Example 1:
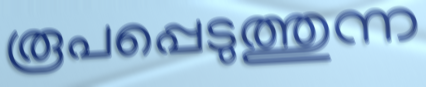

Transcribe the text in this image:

രൂപപ്പെടുത്തുന്ന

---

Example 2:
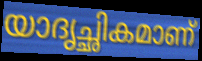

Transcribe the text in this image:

യാദൃച്ഛികമാണ്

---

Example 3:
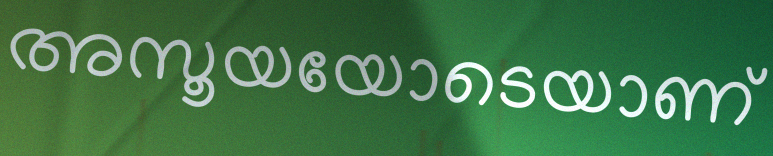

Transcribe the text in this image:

അസൂയയോടെയാണ്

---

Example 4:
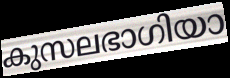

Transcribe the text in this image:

കുസലഭാഗിയാ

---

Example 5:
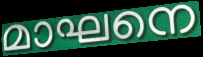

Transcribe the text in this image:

മാഘനെ